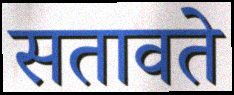
सतावते